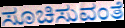
ಸೂಚಿಸುವಂತೆ